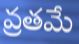
వ్రతమే